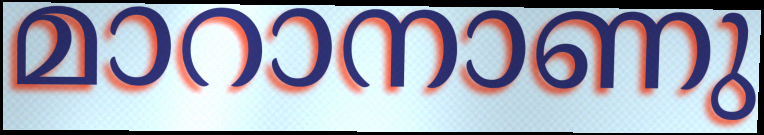
മാറാനാണു